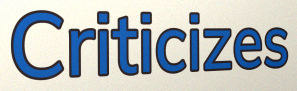
Criticizes